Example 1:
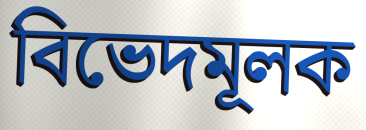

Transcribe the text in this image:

বিভেদমূলক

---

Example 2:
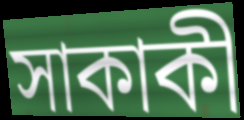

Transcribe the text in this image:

সাকাকী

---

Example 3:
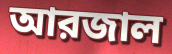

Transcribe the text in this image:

আরজাল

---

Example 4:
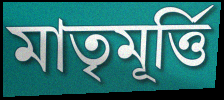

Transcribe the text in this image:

মাতৃমূর্ত্তি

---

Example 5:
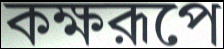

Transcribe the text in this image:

কক্ষরূপে